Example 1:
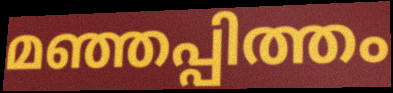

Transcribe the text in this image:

മഞ്ഞപ്പിത്തം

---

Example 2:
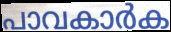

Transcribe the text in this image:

പാവകാർക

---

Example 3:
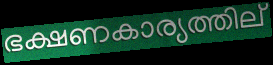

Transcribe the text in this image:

ഭക്ഷണകാര്യത്തില്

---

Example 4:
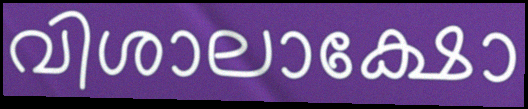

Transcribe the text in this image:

വിശാലാക്ഷോ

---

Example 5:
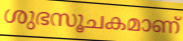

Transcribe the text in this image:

ശുഭസൂചകമാണ്